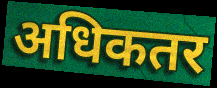
अधिकतर